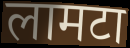
लामटा